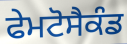
ਫੇਮਟੋਸੈਕੰਡ